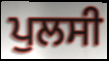
ਪੁਲਸੀ